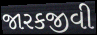
જારકજીવી